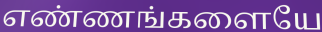
எண்ணங்களையே